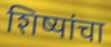
शिष्यांचा